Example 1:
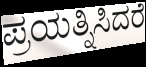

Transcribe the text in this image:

ಪ್ರಯತ್ನಿಸಿದರೆ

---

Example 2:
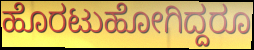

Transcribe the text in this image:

ಹೊರಟುಹೋಗಿದ್ದರೂ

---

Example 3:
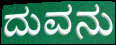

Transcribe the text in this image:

ದುವನು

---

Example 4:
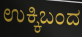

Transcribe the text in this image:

ಉಕ್ಕಿಬಂದ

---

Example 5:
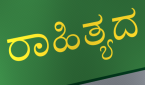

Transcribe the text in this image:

ರಾಹಿತ್ಯದ